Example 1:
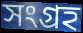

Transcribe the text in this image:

সংগ্রহ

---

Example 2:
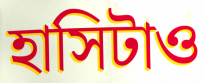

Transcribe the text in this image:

হাসিটাও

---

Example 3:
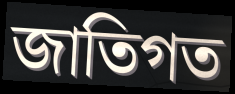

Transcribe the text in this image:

জাতিগত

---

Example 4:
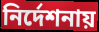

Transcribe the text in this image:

নির্দেশনায়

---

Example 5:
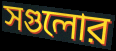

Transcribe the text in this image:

সগুলোর